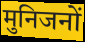
मुनिजनों